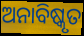
ଅନାବିଷ୍କୃତ